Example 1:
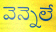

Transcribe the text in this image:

వెన్నెలే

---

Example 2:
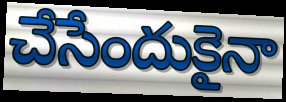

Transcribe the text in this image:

చేసేందుకైనా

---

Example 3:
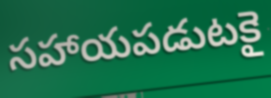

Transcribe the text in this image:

సహాయపడుటకై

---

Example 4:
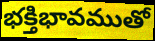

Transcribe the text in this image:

భక్తిభావముతో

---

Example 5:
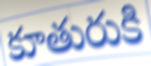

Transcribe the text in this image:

కూతురుకి